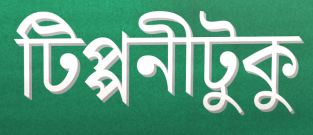
টিপ্পনীটুকু